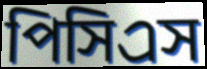
পিসিএস